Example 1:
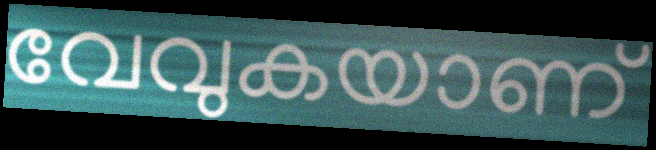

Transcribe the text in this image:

വേവുകയാണ്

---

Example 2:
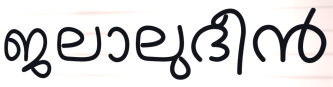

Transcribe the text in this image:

ജലാലുദീൻ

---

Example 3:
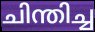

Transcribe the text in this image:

ചിന്തിച്ച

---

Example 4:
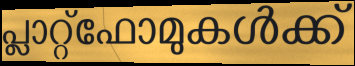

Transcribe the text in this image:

പ്ലാറ്റ്ഫോമുകൾക്ക്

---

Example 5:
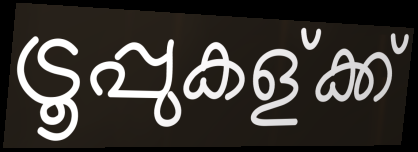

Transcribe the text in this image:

ട്രൂപ്പുകള്ക്ക്